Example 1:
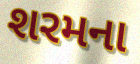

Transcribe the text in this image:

શરમના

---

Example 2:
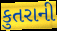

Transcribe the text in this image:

કુતરાની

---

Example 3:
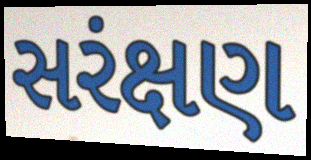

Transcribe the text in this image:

સરંક્ષણ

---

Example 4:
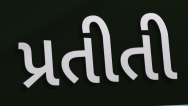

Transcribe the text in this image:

પ્રતીતી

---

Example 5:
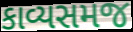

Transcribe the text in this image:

કાવ્યસમજ